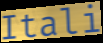
Itali